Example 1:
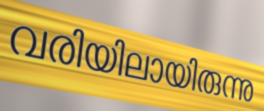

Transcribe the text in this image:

വരിയിലായിരുന്നു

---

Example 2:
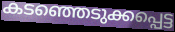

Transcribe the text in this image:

കടഞ്ഞെടുക്കപ്പെട്ട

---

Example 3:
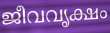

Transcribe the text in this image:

ജീവവൃക്ഷം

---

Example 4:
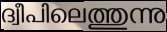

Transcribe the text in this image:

ദ്വീപിലെത്തുന്നു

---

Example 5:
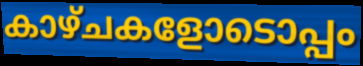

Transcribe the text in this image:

കാഴ്ചകളോടൊപ്പം